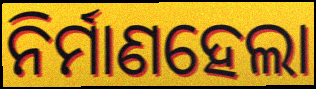
ନିର୍ମାଣହେଲା